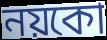
নয়কো